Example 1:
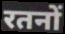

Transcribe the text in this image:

रतनों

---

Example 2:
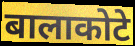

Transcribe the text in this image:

बालाकोटे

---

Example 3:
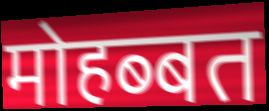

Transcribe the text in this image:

मोहब्‍बत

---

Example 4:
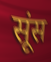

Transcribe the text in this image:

सूंस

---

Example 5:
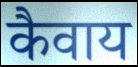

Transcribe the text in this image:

कैवाय